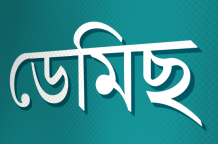
ডেমিছ